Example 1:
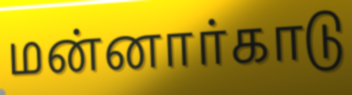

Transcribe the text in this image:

மன்னார்காடு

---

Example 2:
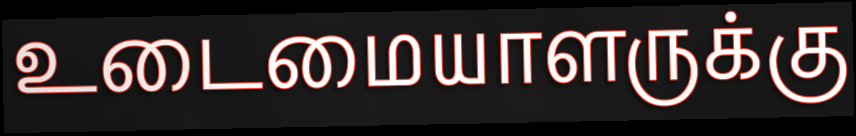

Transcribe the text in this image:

உடைமையாளருக்கு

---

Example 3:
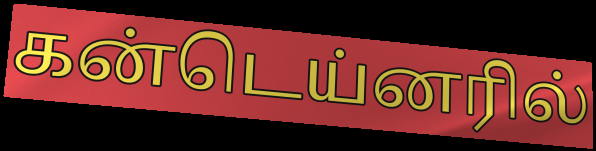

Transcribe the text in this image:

கன்டெய்னரில்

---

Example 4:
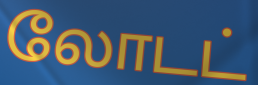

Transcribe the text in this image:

லோடட்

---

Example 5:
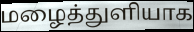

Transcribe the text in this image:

மழைத்துளியாக